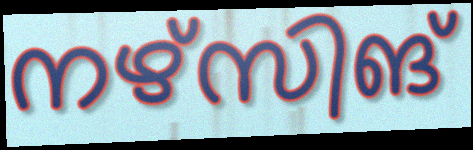
നഴ്സിങ്